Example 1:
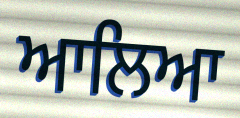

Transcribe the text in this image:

ਆਲਿਆ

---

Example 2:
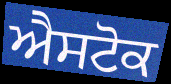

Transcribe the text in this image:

ਐਸਟੋਕ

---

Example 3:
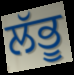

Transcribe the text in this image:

ਲੱਭੂ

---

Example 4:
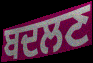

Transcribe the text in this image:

ਬਦਲਣ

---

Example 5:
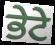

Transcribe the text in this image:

ਭੇਟੇ